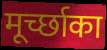
मूर्च्छाका